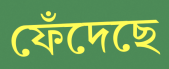
ফেঁদেছে